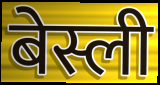
बेस्ली